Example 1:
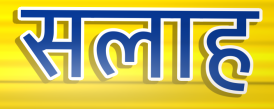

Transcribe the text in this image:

सलाह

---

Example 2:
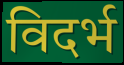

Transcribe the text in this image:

विदर्भ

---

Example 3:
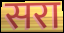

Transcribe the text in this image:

सरा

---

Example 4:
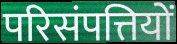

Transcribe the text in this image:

परिसंपत्तियों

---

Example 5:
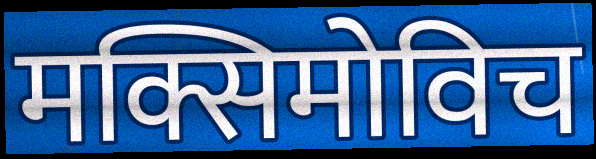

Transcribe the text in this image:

मक्सिमोविच